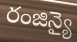
రంజిన్యై